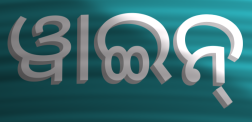
ୱାଇନ୍